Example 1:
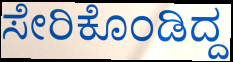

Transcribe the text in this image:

ಸೇರಿಕೊಂಡಿದ್ದ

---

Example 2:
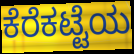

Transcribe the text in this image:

ಕೆರೆಕಟ್ಟೆಯ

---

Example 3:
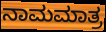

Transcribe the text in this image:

ನಾಮಮಾತ್ರ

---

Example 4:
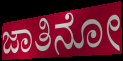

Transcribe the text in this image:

ಜಾತಿನೋ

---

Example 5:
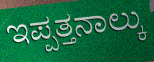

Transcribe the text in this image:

ಇಪ್ಪತ್ತನಾಲ್ಕು